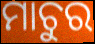
ମାଚୁର